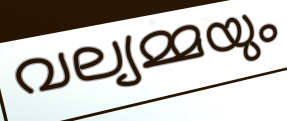
വല്യമ്മയും